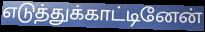
எடுத்துக்காட்டினேன்